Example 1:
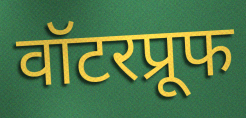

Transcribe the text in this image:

वॉटरप्रूफ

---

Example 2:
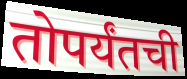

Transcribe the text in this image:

तोपर्यंतची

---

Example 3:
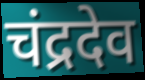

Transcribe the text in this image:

चंद्रदेव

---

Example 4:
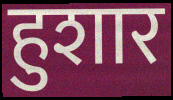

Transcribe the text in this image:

हुशार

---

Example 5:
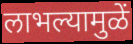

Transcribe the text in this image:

लाभल्यामुळें